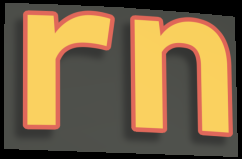
rn